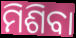
ମିଶିବା